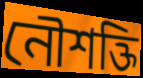
নৌশক্তি